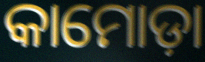
କାମୋଡ଼ା